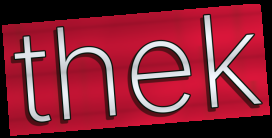
thek